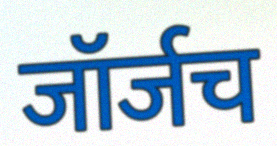
जॉर्जच